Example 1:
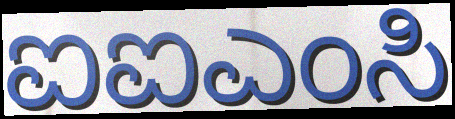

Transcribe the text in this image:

ಐಐಎಂಸಿ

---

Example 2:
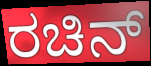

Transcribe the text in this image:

ರಚಿನ್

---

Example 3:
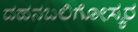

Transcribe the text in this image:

ದಹನಬಲಿಗೋಸ್ಕರ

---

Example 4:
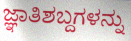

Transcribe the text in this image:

ಜ್ಞಾತಿಶಬ್ದಗಳನ್ನು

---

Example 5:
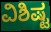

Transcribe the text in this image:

ವಿಶಿಷ್ಟ